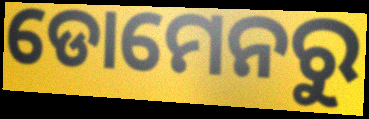
ଡୋମେନରୁ